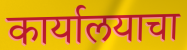
कार्यालयाचा